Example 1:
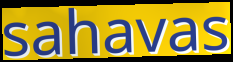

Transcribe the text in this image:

sahavas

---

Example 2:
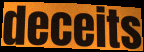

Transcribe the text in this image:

deceits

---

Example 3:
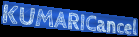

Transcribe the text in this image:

KUMARICancel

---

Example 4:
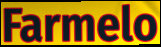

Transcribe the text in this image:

Farmelo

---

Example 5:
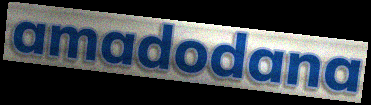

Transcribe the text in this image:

amadodana